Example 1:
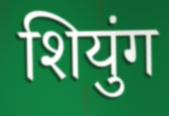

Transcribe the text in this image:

शियुंग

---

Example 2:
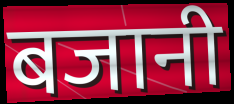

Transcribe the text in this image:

बजानी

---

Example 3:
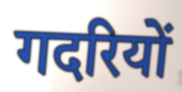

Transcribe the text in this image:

गदरियों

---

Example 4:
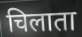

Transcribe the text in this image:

चिलाता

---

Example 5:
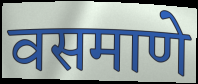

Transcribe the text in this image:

वसमाणे